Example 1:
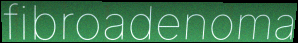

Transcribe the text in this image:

fibroadenoma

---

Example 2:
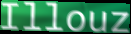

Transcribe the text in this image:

Illouz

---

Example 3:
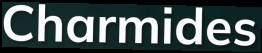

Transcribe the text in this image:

Charmides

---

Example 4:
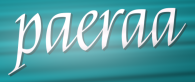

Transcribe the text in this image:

paeraa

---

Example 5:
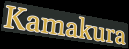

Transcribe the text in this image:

Kamakura